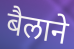
बैलाने